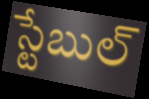
స్టేబుల్